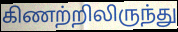
கிணற்றிலிருந்து